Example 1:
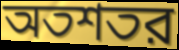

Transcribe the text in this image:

অতশতর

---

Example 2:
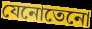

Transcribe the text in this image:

যেনোতেনো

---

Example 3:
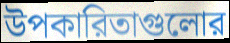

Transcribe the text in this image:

উপকারিতাগুলোর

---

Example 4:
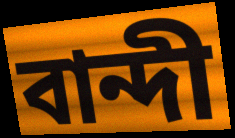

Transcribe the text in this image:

বান্দী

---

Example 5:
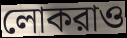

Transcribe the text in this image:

লোকরাও